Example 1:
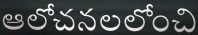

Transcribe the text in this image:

ఆలోచనలలోంచి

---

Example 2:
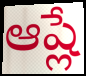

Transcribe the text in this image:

ఆష్లే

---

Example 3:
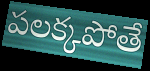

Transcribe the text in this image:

పలక్కపోతే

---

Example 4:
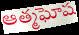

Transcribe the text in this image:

ఆత్మఘోష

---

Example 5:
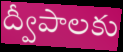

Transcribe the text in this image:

ద్వీపాలకు